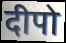
दीपो